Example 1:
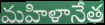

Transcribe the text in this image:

మహిళానేత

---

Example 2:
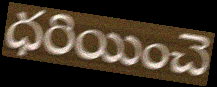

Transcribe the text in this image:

ధరియించె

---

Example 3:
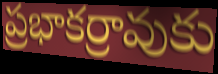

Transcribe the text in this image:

ప్రభాకర్రావుకు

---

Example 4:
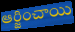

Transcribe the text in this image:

ఆర్జించాయి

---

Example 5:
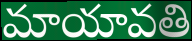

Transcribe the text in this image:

మాయావతి